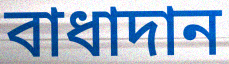
বাধাদান